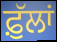
ਫ਼ੁੱਲਾਂ